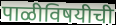
पाळीविषयीची